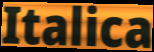
Italica